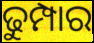
ଢୁମ୍ପାର